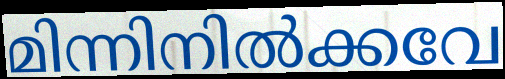
മിന്നിനിൽക്കവേ